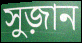
সুজ়ান